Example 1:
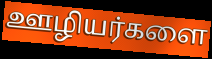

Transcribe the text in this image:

ஊழியர்களை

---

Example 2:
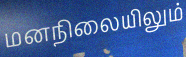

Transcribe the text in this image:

மனநிலையிலும்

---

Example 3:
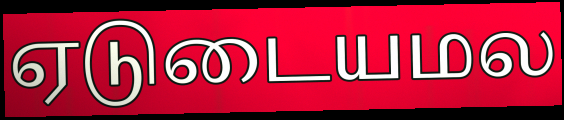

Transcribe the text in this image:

ஏடுடையமல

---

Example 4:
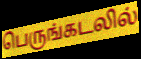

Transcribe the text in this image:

பெருங்கடலில்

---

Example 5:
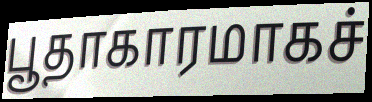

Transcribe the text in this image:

பூதாகாரமாகச்